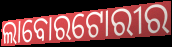
ଲାବୋରଟୋରୀର